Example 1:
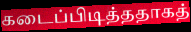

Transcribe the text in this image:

கடைப்பிடித்ததாகத்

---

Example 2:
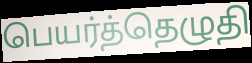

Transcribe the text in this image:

பெயர்த்தெழுதி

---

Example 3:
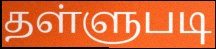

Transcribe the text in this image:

தள்ளுபடி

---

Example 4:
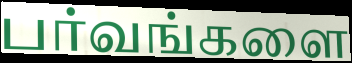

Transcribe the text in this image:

பர்வங்களை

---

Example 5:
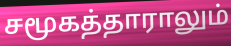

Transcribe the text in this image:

சமூகத்தாராலும்